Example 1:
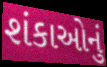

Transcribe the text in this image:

શંકાઓનું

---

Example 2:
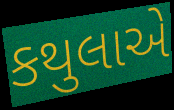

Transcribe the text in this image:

કથુલાએ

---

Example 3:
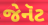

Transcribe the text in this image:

જેનૅટ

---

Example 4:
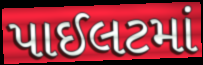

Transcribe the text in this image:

પાઈલટમાં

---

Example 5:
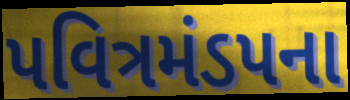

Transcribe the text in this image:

પવિત્રમંડપના